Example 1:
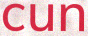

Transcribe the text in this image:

cun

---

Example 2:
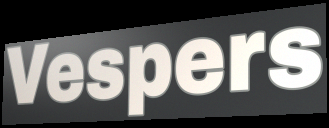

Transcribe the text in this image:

Vespers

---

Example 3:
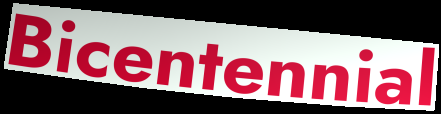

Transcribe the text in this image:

Bicentennial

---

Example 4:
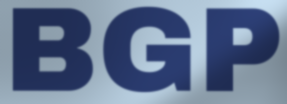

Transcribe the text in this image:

BGP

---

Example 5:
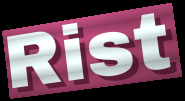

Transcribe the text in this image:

Rist